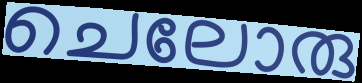
ചെലോരു